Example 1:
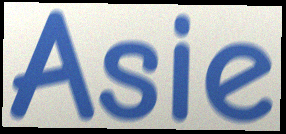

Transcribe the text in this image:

Asie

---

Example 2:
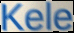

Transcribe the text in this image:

Kele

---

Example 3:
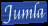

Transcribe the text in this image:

Jumla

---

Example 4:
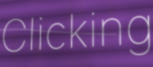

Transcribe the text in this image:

Clicking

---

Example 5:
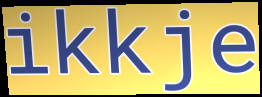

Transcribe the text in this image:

ikkje